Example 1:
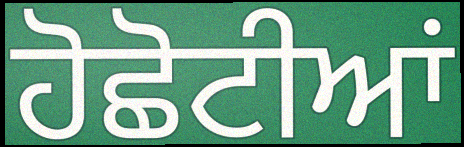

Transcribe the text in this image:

ਹੋਛੋਟੀਆਂ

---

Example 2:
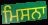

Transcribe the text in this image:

ਮਿਸਨਾ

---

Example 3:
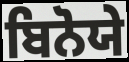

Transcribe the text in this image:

ਬਿਨੋਯੇ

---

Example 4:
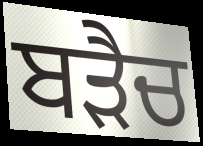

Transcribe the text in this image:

ਬੜੈਚ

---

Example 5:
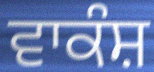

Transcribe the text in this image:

ਵਾਕੰਸ਼